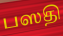
பஸதி